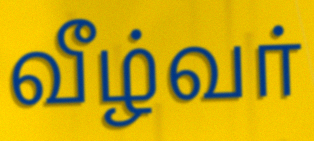
வீழ்வர்